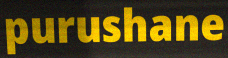
purushane